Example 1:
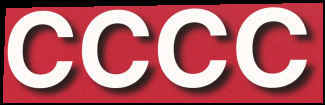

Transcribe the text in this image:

CCCC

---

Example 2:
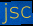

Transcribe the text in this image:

jsc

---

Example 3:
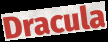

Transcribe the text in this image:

Dracula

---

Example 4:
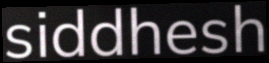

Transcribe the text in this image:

siddhesh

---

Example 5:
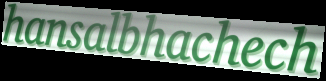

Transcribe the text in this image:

hansalbhachech